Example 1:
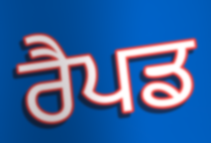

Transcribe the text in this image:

ਰੈਪਡ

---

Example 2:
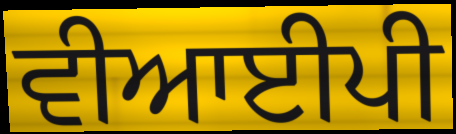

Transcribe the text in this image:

ਵੀਆਈਪੀ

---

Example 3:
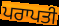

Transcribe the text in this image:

ਪਰਾਪਤੀ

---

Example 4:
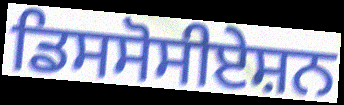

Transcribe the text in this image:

ਡਿਸਸੋਸੀਏਸ਼ਨ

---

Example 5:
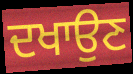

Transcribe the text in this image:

ਦਖਾਉਣ